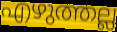
എഴുത്തല്ല